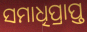
ସମାଧିପ୍ରାପ୍ତ